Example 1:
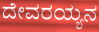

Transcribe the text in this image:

ದೇವರಯ್ಯನ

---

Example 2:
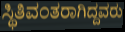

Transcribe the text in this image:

ಸ್ಥಿತಿವಂತರಾಗಿದ್ದವರು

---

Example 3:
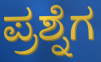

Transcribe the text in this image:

ಪ್ರಶ್ನೆಗ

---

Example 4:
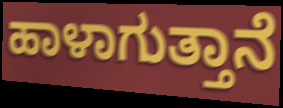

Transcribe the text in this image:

ಹಾಳಾಗುತ್ತಾನೆ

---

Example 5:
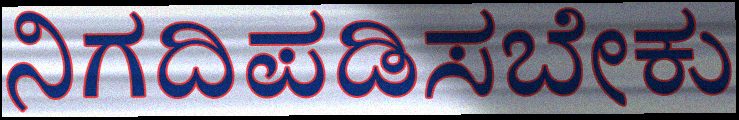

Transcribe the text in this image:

ನಿಗದಿಪಡಿಸಬೇಕು